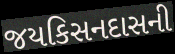
જયકિસનદાસની